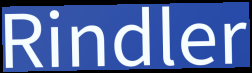
Rindler